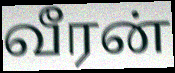
வீரன்